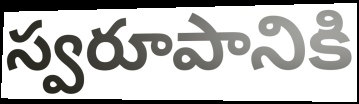
స్వరూపానికి